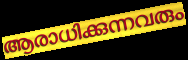
ആരാധിക്കുന്നവരും